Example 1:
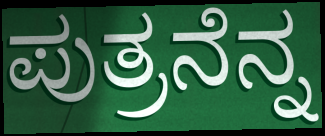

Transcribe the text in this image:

ಪುತ್ರನೆನ್ನ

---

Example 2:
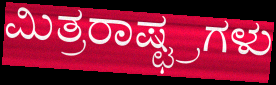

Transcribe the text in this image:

ಮಿತ್ರರಾಷ್ಟ್ರಗಳು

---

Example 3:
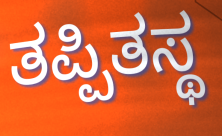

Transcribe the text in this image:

ತಪ್ಪಿತಸ್ಥ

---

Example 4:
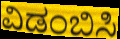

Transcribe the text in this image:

ವಿಡಂಬಿಸಿ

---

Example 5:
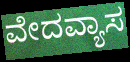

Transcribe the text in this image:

ವೇದವ್ಯಾಸ